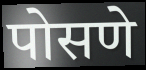
पोसणे